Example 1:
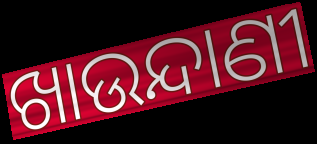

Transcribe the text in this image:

ଖାଉନ୍ଦାଣୀ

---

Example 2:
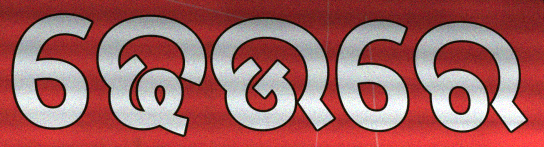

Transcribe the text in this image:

ଢେଉରେ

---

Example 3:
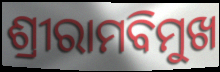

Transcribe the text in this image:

ଶ୍ରୀରାମବିମୁଖ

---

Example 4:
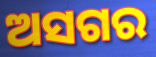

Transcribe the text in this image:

ଅସଗର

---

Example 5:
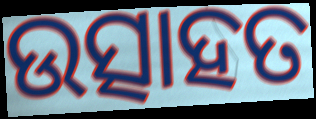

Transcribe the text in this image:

ଉତ୍ସାହତ